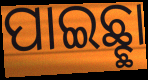
ପାଇଛ୍ଛା